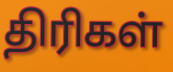
திரிகள்